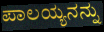
ಪಾಲಯ್ಯನನ್ನು